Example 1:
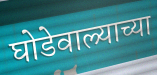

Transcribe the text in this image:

घोडेवाल्याच्या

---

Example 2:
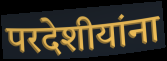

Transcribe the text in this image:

परदेशीयांना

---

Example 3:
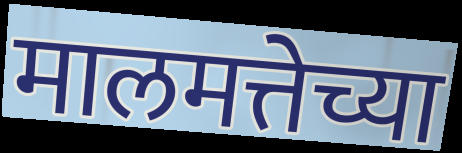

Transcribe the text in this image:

मालमत्तेच्या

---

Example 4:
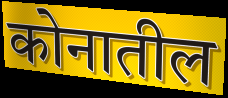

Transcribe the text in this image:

कोनातील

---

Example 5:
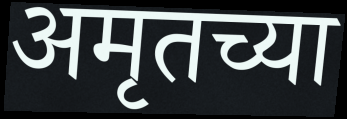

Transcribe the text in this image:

अमृतच्या